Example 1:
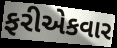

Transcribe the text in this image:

ફરીએકવાર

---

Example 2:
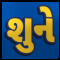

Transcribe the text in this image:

શુને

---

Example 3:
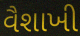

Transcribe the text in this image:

વૈશાખી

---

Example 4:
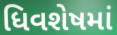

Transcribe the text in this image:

ધિવશેષમાં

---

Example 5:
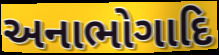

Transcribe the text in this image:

અનાભોગાદિ